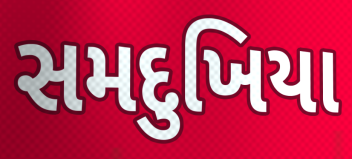
સમદુખિયા